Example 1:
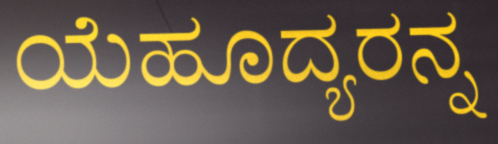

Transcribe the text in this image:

ಯೆಹೂದ್ಯರನ್ನ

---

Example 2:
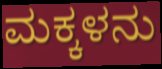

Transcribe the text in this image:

ಮಕ್ಕಳನು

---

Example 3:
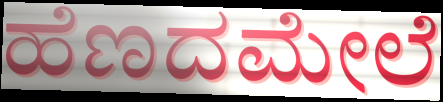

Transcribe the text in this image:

ಹೆಣದಮೇಲೆ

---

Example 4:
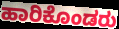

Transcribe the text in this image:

ಹಾರಿಕೊಂಡರು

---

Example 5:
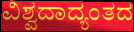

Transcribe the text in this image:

ವಿಶ್ವದಾದ್ಯಂತದ